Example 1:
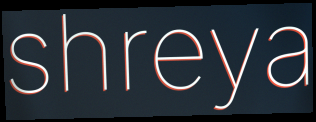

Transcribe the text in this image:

shreya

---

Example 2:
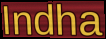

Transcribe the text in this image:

Indha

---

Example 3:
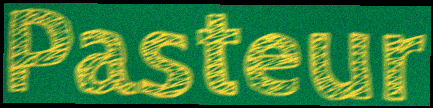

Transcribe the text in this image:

Pasteur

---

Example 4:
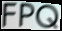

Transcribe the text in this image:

FPQ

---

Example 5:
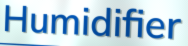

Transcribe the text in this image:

Humidifier